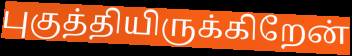
புகுத்தியிருக்கிறேன்